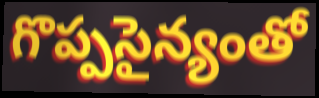
గొప్పసైన్యంతో